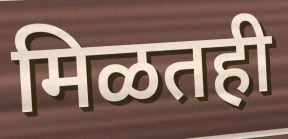
मिळतही